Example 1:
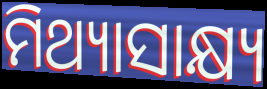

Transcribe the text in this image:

ମିଥ୍ୟାସାକ୍ଷ୍ୟ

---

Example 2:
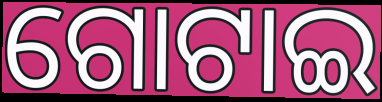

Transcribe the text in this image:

ଗୋଟାଇ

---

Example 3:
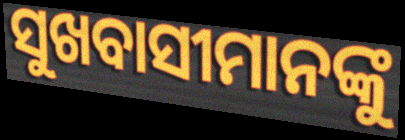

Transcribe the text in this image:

ସୁଖବାସୀମାନଙ୍କୁ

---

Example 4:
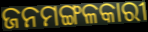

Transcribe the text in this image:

ଜନମଙ୍ଗଳକାରୀ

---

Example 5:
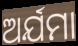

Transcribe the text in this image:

ଅର୍ଯମା